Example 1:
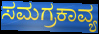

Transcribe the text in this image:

ಸಮಗ್ರಕಾವ್ಯ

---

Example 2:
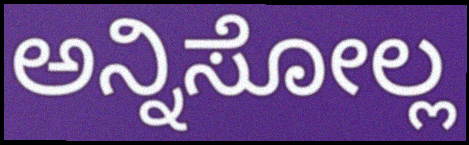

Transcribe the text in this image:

ಅನ್ನಿಸೋಲ್ಲ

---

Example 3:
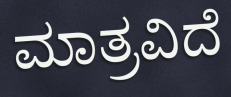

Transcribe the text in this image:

ಮಾತ್ರವಿದೆ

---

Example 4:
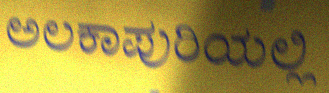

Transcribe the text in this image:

ಅಲಕಾಪುರಿಯಲ್ಲಿ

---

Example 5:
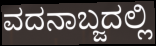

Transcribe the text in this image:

ವದನಾಬ್ಜದಲ್ಲಿ